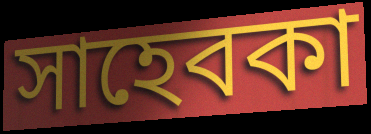
সাহেবকা